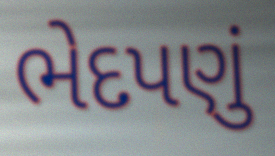
ભેદપણું